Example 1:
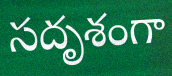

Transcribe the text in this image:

సదృశంగా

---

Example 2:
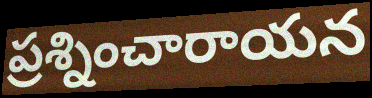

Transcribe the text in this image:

ప్రశ్నించారాయన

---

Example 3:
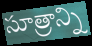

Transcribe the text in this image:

సూత్రాన్ని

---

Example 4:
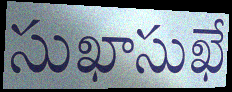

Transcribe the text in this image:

సుఖాసుఖే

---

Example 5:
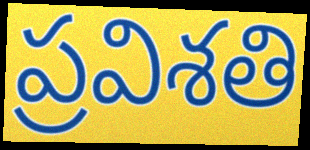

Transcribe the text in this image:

ప్రవిశతి